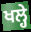
ਖਲ੍ਹੇ